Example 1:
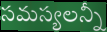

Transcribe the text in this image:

సమస్యలన్నీ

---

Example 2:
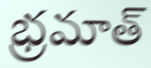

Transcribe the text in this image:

భ్రమాత్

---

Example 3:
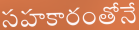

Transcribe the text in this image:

సహకారంతోనే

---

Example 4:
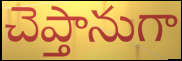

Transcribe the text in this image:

చెప్తానుగా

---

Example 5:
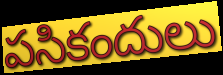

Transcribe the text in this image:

పసికందులు